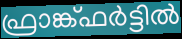
ഫ്രാങ്ക്ഫർട്ടിൽ